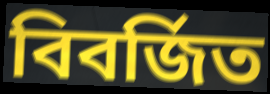
বিবর্জিত